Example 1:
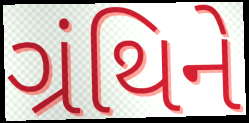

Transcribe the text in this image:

ગ્રંથિને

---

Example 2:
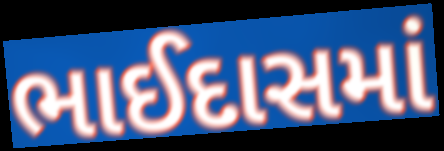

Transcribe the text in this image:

ભાઈદાસમાં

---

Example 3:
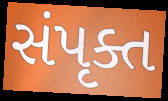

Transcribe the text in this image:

સંપૃક્ત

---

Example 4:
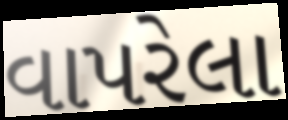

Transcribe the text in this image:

વાપરેલા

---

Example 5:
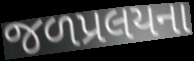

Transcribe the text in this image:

જળપ્રલયના